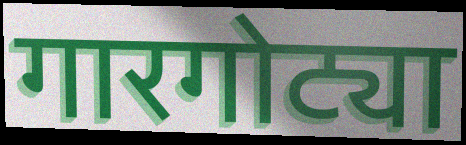
गारगोट्या